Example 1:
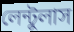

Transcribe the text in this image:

লেন্টুলাস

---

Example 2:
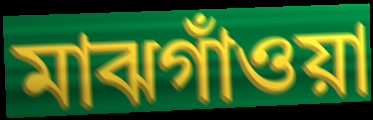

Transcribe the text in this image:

মাঝগাঁওয়া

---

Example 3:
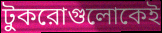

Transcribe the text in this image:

টুকরোগুলোকেই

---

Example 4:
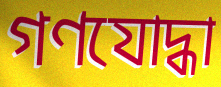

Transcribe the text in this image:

গণযোদ্ধা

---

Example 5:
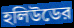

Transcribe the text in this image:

হলিউডের